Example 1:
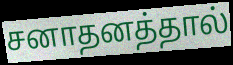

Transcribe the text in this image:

சனாதனத்தால்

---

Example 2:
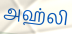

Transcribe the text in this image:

அஹ்லி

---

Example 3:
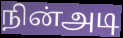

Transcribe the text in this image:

நின்அடி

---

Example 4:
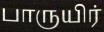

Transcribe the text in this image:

பாருயிர்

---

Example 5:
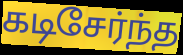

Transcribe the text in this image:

கடிசேர்ந்த